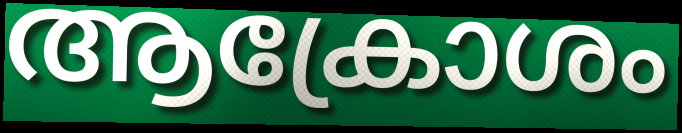
ആക്രോശം